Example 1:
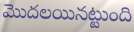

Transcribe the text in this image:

మొదలయినట్టుంది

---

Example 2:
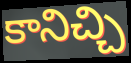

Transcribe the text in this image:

కానిచ్చి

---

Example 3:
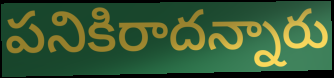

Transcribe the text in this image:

పనికిరాదన్నారు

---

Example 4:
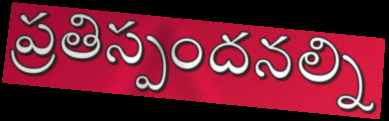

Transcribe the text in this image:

ప్రతిస్పందనల్ని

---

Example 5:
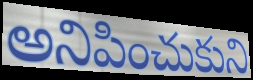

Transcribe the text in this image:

అనిపించుకుని